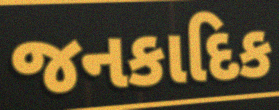
જનકાદિક